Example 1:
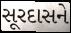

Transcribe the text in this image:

સૂરદાસને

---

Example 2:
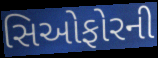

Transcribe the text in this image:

સિઓફોરની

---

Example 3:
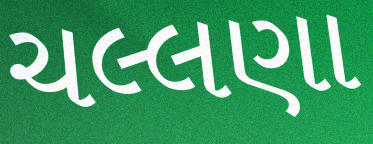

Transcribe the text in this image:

ચલ્લણા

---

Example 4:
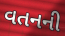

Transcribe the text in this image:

વતનની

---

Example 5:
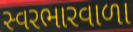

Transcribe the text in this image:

સ્વરભારવાળા